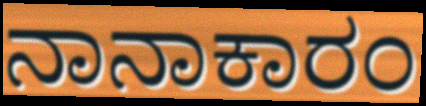
ನಾನಾಕಾರಂ